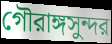
গৌরাঙ্গসুন্দর